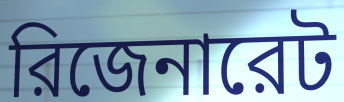
রিজেনারেট